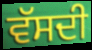
ਵੱਸਦੀ